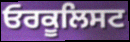
ਓਰਕੂਲਿਸਟ